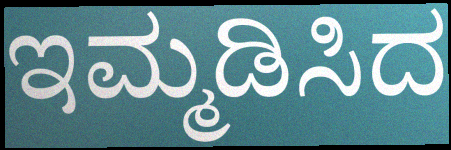
ಇಮ್ಮಡಿಸಿದ